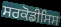
ਸਰਕੋਡੀਸਿਸ